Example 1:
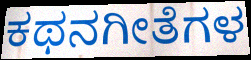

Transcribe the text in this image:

ಕಥನಗೀತೆಗಳ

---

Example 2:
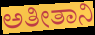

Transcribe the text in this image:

ಅತೀತಾನಿ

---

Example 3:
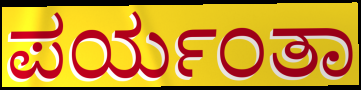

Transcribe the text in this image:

ಪರ್ಯಂತಾ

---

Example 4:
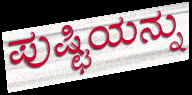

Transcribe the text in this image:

ಪುಷ್ಟಿಯನ್ನು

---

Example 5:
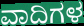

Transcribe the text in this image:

ವಾದಿಗಳ